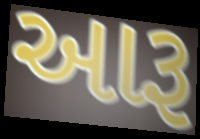
આરૂ